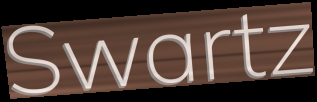
Swartz